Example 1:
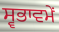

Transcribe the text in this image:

ਸ੍ਵਭਾਵਮੇਂ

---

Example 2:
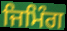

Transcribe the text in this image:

ਜਿਮਿੰਗ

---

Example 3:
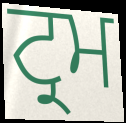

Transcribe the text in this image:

ਟ੍ਰਮ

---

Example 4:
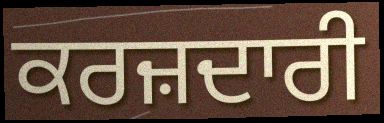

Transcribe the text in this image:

ਕਰਜ਼ਦਾਰੀ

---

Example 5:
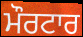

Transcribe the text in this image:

ਮੌਰਟਾਰ